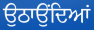
ਉਠਾਉਂਦਿਆਂ